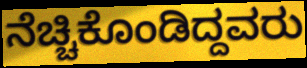
ನೆಚ್ಚಿಕೊಂಡಿದ್ದವರು